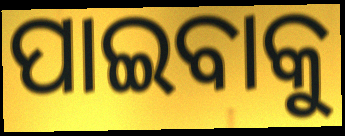
ପାଇବାକୁ